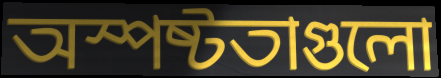
অস্পষ্টতাগুলো